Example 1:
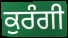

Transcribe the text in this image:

ਕੁਰੰਗੀ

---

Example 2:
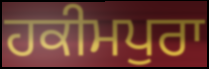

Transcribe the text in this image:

ਹਕੀਮਪੁਰਾ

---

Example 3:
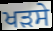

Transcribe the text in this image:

ਖੜਸੇ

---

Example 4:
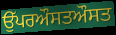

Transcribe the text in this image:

ਉੱਪਰਔਸਤਔਸਤ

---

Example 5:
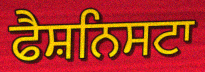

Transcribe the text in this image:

ਫੈਸ਼ਨਿਸਟਾ